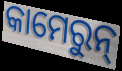
କାମେରୁନ୍